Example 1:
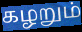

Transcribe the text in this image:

கழறும்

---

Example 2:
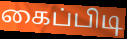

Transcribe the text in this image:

கைப்பிடி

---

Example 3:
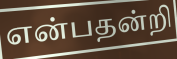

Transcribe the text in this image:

என்பதன்றி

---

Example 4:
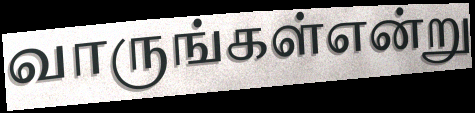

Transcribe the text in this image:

வாருங்கள்என்று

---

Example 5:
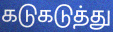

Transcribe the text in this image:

கடுகடுத்து